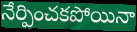
నేర్పించకపోయినా